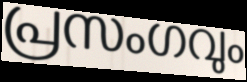
പ്രസംഗവും